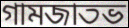
গামজাতভ